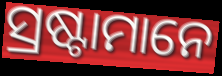
ସ୍ରଷ୍ଟାମାନେ